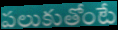
పలుకుతోంటే